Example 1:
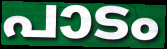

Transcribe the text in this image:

പാടം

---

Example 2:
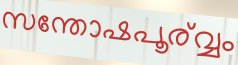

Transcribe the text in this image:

സന്തോഷപൂര്വ്വം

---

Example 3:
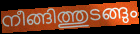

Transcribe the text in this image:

നീങ്ങിത്തുടങ്ങും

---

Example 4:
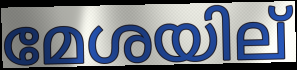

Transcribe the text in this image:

മേശയില്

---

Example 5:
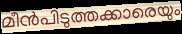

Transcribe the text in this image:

മീൻപിടുത്തക്കാരെയും